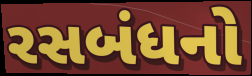
રસબંધનો